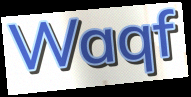
Waqf